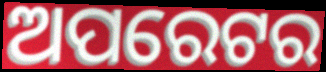
ଅପରେଟର